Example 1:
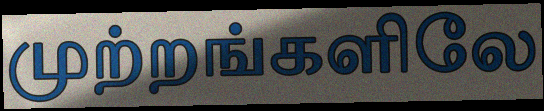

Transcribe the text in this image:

முற்றங்களிலே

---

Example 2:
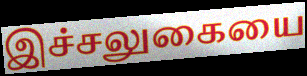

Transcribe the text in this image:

இச்சலுகையை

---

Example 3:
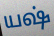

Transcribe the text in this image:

யஷ்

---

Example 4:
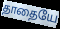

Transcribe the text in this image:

தாதையே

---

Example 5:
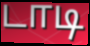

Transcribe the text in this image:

டாடி